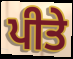
ਪੀਤੇ